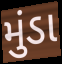
મુંડા